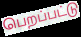
பெறப்பட்டு